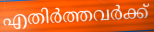
എതിർത്തവർക്ക്